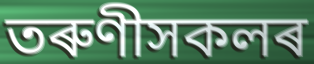
তৰুণীসকলৰ